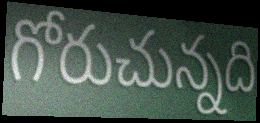
గోరుచున్నది